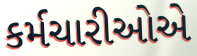
કર્મચારીઓએ